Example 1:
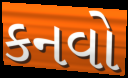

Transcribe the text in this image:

કનવો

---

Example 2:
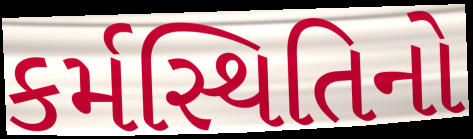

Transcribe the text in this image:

કર્મસ્થિતિનો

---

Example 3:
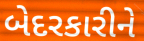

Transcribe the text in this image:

બેદરકારીને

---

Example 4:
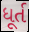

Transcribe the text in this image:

ધૂર્ત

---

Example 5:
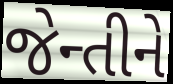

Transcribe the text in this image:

જેન્તીને